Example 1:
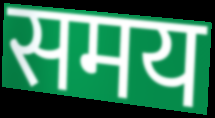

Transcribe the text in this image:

समय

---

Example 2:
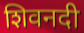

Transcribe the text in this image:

शिवनदी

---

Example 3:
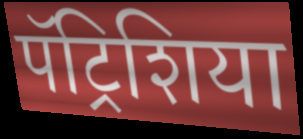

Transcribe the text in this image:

पॅट्रिशिया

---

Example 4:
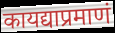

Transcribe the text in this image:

कायद्याप्रमाणं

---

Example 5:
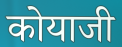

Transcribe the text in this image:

कोयाजी